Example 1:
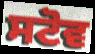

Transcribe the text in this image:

ਸਟੋਵ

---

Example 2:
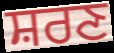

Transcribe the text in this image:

ਸ਼ਰਣ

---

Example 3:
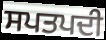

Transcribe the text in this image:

ਸਪਤਪਦੀ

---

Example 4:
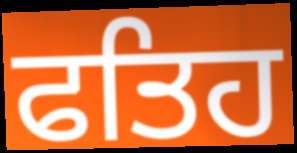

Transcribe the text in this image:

ਫਤਿਹ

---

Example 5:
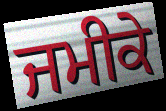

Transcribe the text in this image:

ਜਮੀਕੇ